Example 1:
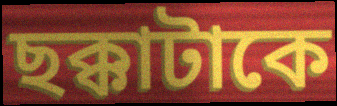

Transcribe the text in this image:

ছক্কাটাকে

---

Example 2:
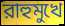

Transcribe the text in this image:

রাহুমুখে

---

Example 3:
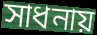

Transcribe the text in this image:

সাধনায়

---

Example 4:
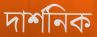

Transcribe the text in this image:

দার্শনিক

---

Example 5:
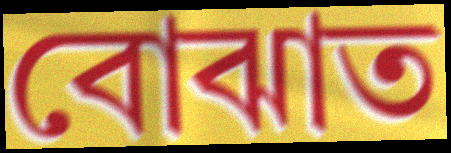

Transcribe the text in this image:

বোঝাত